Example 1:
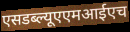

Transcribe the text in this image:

एसडब्ल्यूएएमआईएच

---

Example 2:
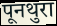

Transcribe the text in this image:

पूनथुरा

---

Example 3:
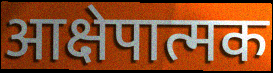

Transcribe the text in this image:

आक्षेपात्मक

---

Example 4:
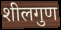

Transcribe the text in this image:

शीलगुण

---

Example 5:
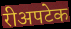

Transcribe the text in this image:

रीअपटेक